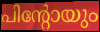
പിന്റോയും